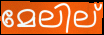
മേലില്